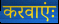
करवाएंः